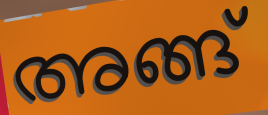
അങ്ങ്